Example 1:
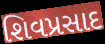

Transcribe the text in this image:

શિવપ્રસાદ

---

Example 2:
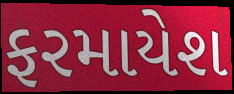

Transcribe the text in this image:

ફરમાયેશ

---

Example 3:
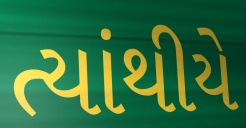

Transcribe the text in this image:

ત્યાંથીયે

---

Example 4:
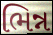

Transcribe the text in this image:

ભિન્ન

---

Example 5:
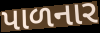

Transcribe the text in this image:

પાળનાર